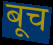
बूच